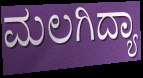
ಮಲಗಿದ್ಯಾ